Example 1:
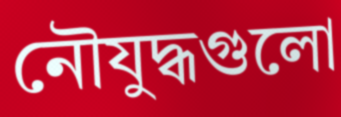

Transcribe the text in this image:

নৌযুদ্ধগুলো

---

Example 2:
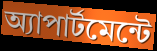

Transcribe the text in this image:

অ্যাপার্টমেন্টে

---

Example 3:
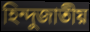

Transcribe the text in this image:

হিন্দুজাতীয়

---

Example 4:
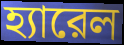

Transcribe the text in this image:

হ্যারেল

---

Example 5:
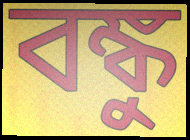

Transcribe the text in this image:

বঙ্কু